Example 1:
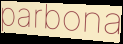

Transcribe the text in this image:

parbona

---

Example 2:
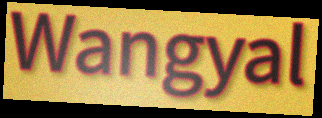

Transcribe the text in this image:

Wangyal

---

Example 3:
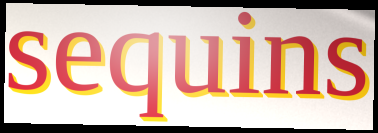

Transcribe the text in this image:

sequins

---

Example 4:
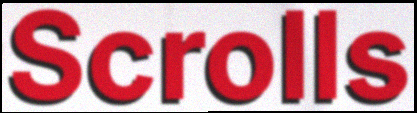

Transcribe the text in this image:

Scrolls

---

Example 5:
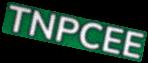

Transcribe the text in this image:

TNPCEE